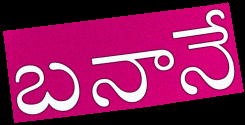
బనానే